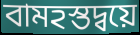
বামহস্তদ্বয়ে